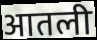
आतली